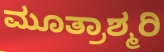
ಮೂತ್ರಾಶ್ಮರಿ